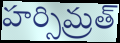
హర్సిమ్రత్